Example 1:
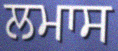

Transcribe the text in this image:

ਲਮਾਸ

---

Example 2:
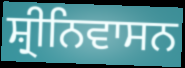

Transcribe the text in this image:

ਸ਼੍ਰੀਨਿਵਾਸਨ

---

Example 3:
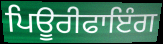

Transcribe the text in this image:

ਪਿਊਰੀਫਾਇੰਗ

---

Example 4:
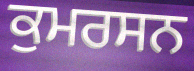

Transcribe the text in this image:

ਕੁਮਰਸਨ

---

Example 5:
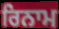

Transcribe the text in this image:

ਰਿਨਾਮ